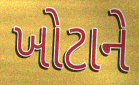
ખોટાને